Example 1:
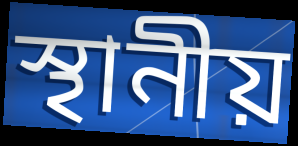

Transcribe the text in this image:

স্থানীয়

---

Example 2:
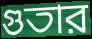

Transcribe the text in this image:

গুতার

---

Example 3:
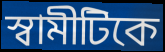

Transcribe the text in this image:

স্বামীটিকে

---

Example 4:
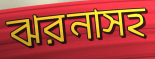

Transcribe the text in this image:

ঝরনাসহ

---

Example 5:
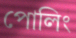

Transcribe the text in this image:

পোলিং